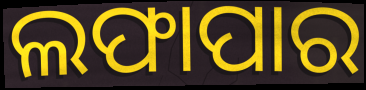
ଲଫାପାର